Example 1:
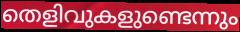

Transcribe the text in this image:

തെളിവുകളുണ്ടെന്നും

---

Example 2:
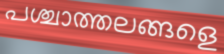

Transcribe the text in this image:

പശ്ചാത്തലങ്ങളെ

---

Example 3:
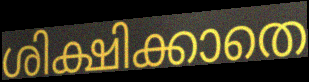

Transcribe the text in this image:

ശിക്ഷിക്കാതെ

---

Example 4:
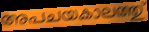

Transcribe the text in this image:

അപചയകാലത്തു്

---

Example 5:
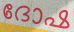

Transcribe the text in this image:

ദോഷ